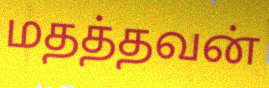
மதத்தவன்